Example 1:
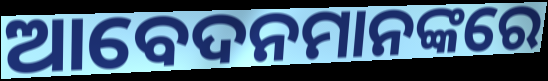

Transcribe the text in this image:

ଆବେଦନମାନଙ୍କରେ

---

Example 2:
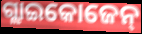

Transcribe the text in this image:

ଗ୍ଲାଇକୋଜେନ୍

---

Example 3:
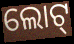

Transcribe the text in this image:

ଲୋଟ୍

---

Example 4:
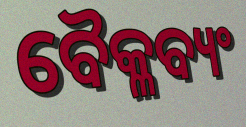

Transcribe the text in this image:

ବୈକ୍ଳବ୍ୟଂ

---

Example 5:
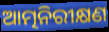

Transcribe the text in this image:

ଆତ୍ମନିରୀକ୍ଷଣ